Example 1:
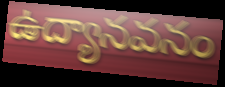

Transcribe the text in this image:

ఉద్యానవనం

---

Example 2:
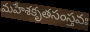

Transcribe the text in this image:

మహేశకృతసంస్తవః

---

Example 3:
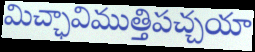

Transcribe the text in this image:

మిచ్ఛావిముత్తిపచ్చయా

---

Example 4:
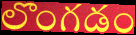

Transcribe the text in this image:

లొంగడం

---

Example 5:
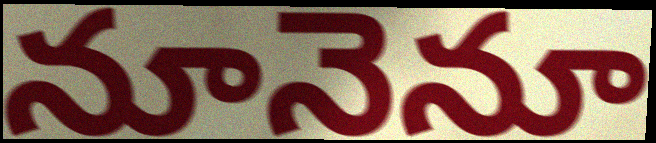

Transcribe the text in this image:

నూనెనూ